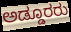
ಅಡ್ಡೂರರು